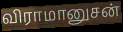
விராமானுசன்